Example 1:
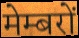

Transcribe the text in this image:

मेम्बरों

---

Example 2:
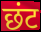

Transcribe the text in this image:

छंट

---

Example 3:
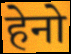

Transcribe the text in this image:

हेनो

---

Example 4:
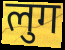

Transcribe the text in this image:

लुग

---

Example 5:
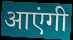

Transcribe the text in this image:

आएंगी